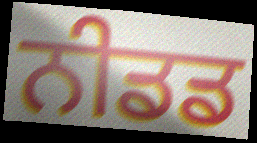
ਨੀਡਡ